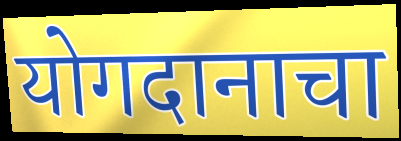
योगदानाचा